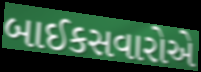
બાઈકસવારોએ